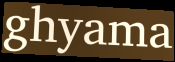
ghyama